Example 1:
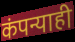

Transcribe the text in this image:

कंपन्याही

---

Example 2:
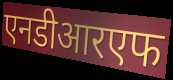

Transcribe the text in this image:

एनडीआरएफ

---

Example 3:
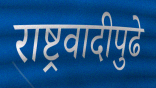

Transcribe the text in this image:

राष्ट्रवादीपुढे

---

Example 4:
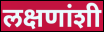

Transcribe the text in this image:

लक्षणांशी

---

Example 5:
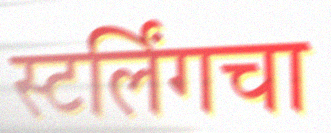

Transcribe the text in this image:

स्टर्लिंगचा